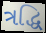
ત્રદ્ધિ